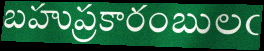
బహుప్రకారంబులఁ